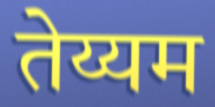
तेय्यम